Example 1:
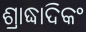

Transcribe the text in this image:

ଶ୍ରାଦ୍ଧାଦିକଂ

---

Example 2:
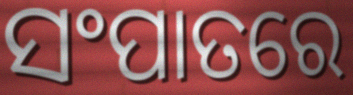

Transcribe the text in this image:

ସଂପାତରେ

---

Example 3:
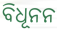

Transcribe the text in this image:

ବିଧୂନନ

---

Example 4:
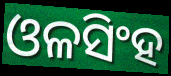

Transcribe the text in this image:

ଓଳସିଂହ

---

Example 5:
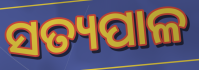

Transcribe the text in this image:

ସତ୍ୟପାଳ